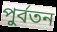
পুর্বতন